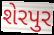
શેરપુર